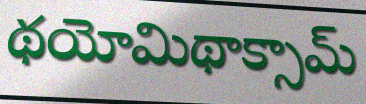
థయోమిథాక్సామ్